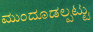
ಮುಂದೂಡಲ್ಪಟ್ಟು